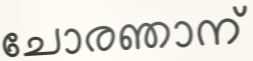
ചോരഞാന്